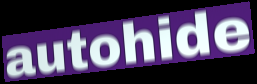
autohide